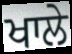
ਖਾਲੇ